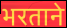
भरताने